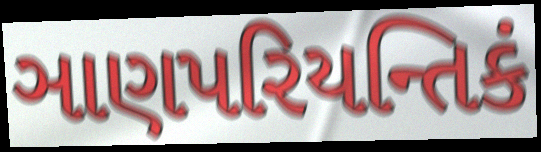
ઞાણપરિયન્તિકં